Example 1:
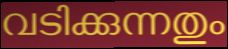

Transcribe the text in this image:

വടിക്കുന്നതും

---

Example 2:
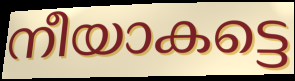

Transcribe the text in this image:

നീയാകട്ടെ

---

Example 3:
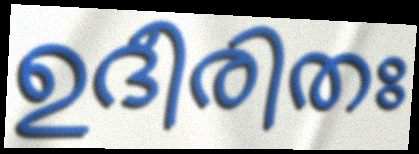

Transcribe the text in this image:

ഉദീരിതഃ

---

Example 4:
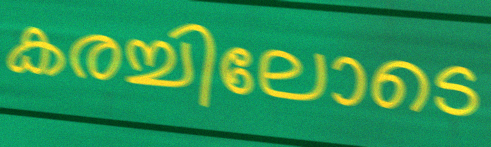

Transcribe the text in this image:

കരച്ചിലോടെ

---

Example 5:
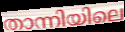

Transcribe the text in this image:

താന്നിയിലെ